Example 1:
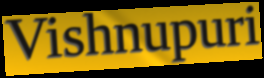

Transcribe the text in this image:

Vishnupuri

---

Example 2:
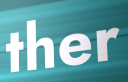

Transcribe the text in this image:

ther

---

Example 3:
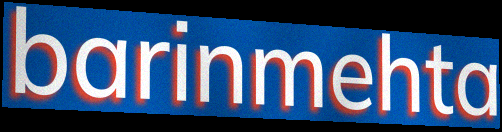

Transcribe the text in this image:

barinmehta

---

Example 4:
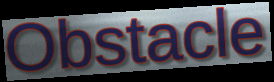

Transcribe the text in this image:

Obstacle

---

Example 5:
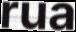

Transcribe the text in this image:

rua